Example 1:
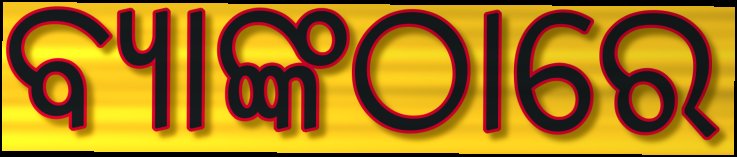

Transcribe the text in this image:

ବ୍ୟାଙ୍କଠାରେ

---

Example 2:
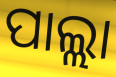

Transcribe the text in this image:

ପାଲ୍ଲା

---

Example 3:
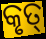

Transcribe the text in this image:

କୃତ୍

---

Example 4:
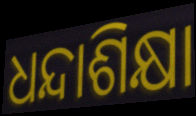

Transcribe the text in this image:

ଧନ୍ଦାଶିକ୍ଷା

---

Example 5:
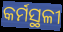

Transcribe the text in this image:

କର୍ମସ୍ଥଳୀ